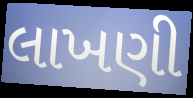
લાખણી